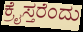
ಕ್ರೈಸ್ತರೆಂದು